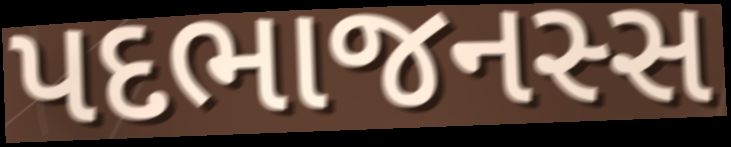
પદભાજનસ્સ